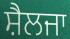
ਸ਼ੈਲਜਾ